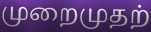
முறைமுதற்